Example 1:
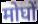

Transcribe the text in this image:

मोघों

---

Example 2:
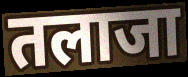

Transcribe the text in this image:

तलाजा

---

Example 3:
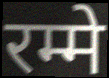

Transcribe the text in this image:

रम्मे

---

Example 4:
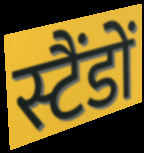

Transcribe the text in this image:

स्टैंडों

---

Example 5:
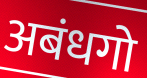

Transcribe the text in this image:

अबंधगो